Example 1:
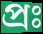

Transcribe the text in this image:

প্ৰঃ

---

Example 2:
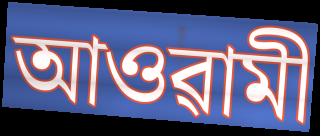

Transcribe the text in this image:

আওৱামী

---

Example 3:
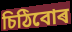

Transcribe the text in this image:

চিঠিবোৰ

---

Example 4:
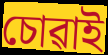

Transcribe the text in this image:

চোৱাই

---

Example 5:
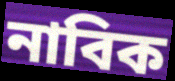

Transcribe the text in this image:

নাবিক